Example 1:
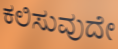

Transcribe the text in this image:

ಕಲಿಸುವುದೇ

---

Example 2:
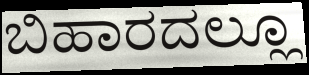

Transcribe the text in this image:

ಬಿಹಾರದಲ್ಲೂ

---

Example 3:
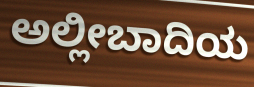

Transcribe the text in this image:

ಅಲ್ಲೀಬಾದಿಯ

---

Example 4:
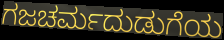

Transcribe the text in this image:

ಗಜಚರ್ಮದುಡುಗೆಯ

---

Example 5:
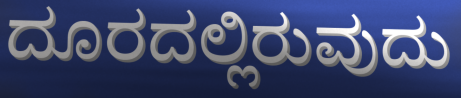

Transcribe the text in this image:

ದೂರದಲ್ಲಿರುವುದು